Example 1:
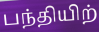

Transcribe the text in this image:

பந்தியிற்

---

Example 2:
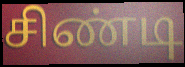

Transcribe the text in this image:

சிண்டி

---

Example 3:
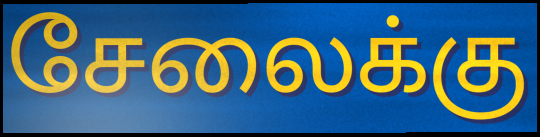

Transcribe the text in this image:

சேலைக்கு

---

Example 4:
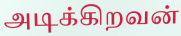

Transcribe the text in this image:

அடிக்கிறவன்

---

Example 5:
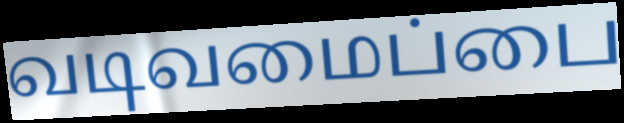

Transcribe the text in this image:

வடிவமைப்பை